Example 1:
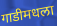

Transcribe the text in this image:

गाडीमधला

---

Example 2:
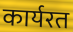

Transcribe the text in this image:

कार्यरत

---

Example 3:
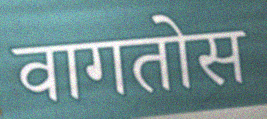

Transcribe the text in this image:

वागतोस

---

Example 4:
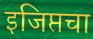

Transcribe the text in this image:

इजिप्तचा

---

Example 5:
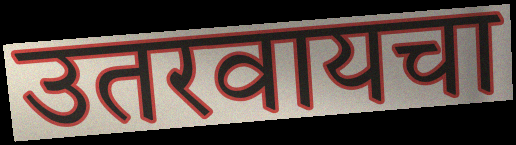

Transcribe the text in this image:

उतरवायचा